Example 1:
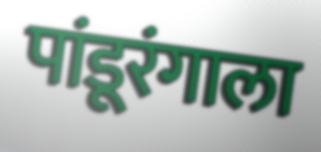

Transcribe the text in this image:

पांडूरंगाला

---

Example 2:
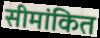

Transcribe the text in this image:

सीमांकित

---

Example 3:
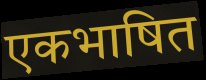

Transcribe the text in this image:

एकभाषित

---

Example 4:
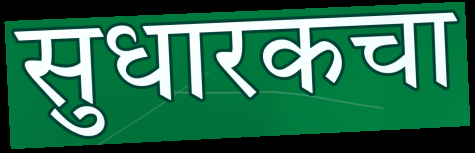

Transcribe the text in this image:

सुधारकचा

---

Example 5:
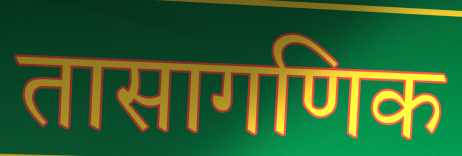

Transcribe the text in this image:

तासागणिक